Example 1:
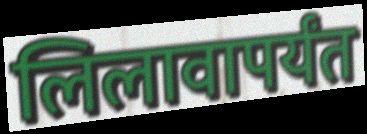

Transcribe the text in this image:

लिलावापर्यंत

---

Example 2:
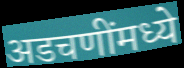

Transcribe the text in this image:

अडचणींमध्ये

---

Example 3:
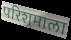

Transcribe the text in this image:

परिश्रमाला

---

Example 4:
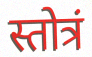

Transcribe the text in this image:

स्तोत्रं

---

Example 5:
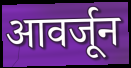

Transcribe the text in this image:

आवर्जून